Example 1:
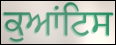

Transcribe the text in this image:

ਕੁਆਂਟਿਸ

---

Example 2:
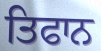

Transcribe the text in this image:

ਤਿਫਾਨ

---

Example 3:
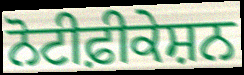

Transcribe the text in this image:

ਨੋਟੀਫ਼ੀਕੇਸ਼ਨ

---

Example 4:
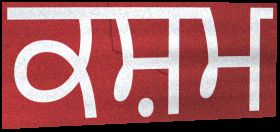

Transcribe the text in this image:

ਕਸ਼ਮ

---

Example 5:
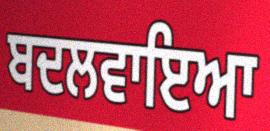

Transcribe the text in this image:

ਬਦਲਵਾਇਆ